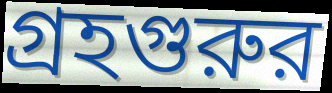
গ্রহগুরুর